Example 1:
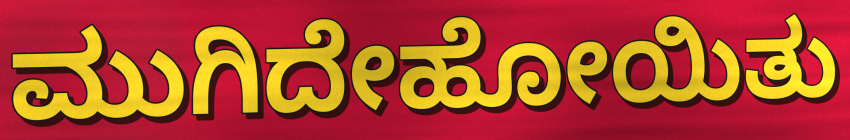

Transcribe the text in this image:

ಮುಗಿದೇಹೋಯಿತು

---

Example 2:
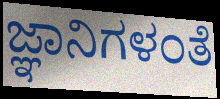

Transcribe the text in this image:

ಜ್ಞಾನಿಗಳಂತೆ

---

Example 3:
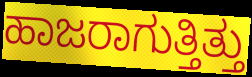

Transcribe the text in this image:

ಹಾಜರಾಗುತ್ತಿತ್ತು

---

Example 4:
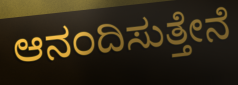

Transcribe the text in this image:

ಆನಂದಿಸುತ್ತೇನೆ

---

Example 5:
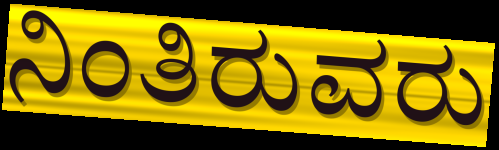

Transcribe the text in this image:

ನಿಂತಿರುವರು